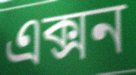
এক্সন